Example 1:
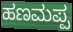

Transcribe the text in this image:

ಹಣಮಪ್ಪ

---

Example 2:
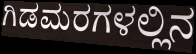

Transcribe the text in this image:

ಗಿಡಮರಗಳಲ್ಲಿನ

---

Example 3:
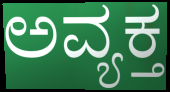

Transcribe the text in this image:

ಅವ್ಯಕ್ತ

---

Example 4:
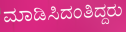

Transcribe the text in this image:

ಮಾಡಿಸಿದಂತಿದ್ದರು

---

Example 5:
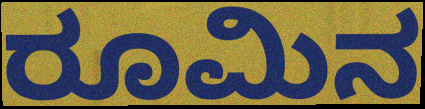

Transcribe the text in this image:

ರೂಮಿನ